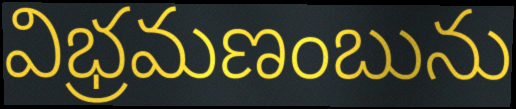
విభ్రమణంబును